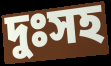
দুঃসহ